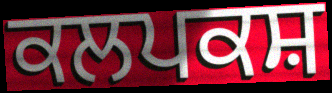
ਕਲਪਕਸ਼